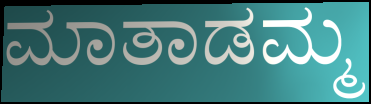
ಮಾತಾಡಮ್ಮ